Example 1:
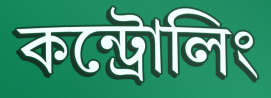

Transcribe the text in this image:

কন্ট্রোলিং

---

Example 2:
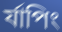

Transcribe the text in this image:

র্যাপিং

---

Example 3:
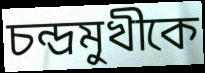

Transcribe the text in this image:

চন্দ্রমুখীকে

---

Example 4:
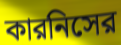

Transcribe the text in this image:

কারনিসের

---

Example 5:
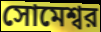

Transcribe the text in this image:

সোমেশ্বর